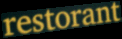
restorant